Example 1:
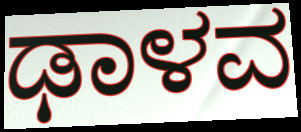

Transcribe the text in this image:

ಢಾಳವ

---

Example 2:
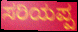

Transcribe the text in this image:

ಸರಿಯಪ್ಪ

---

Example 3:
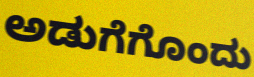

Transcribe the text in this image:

ಅಡುಗೆಗೊಂದು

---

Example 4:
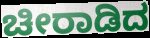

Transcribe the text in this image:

ಚೀರಾಡಿದ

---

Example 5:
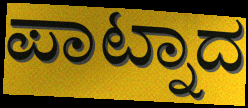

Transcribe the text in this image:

ಪಾಟ್ನಾದ